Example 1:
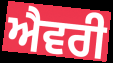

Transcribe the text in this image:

ਐਵਰੀ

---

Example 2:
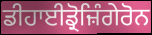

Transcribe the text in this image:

ਡੀਹਾਈਡ੍ਰੋਜ਼ਿੰਗੇਰੋਨ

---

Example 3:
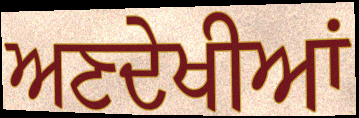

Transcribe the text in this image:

ਅਣਦੇਖੀਆਂ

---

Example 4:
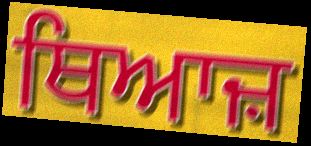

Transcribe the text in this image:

ਥਿਆਜ਼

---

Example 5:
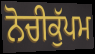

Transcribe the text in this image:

ਨੋਚੀਕੁੱਪਮ